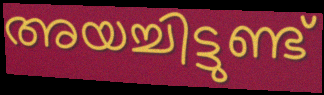
അയച്ചിട്ടുണ്ട്